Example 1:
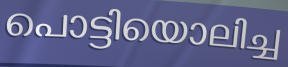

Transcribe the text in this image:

പൊട്ടിയൊലിച്ച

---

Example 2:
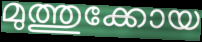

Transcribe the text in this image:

മുത്തുക്കോയ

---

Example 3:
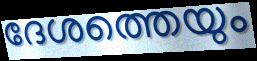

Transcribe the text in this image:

ദേശത്തെയും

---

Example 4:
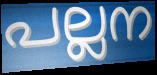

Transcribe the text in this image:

പല്ലന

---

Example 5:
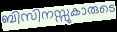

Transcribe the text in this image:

ബിസിനസ്സുകാരുടെ